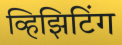
व्हिझिटिंग